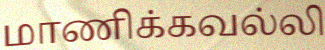
மாணிக்கவல்லி